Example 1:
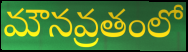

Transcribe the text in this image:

మౌనవ్రతంలో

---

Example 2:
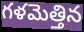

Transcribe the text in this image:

గళమెత్తిన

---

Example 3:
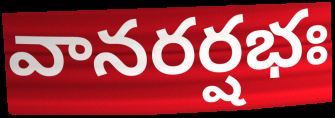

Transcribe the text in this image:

వానరర్షభః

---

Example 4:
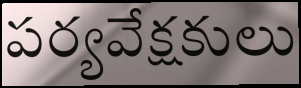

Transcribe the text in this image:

పర్యవేక్షకులు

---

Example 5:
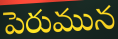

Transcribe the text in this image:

పెరుమున